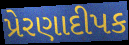
પ્રેરણાદીપક